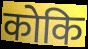
कोकि